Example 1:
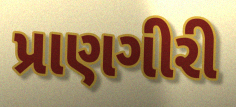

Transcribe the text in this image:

પ્રાણગીરી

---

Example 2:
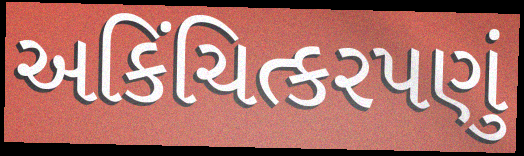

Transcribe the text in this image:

અકિંચિત્કરપણું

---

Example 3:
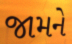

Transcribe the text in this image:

જામને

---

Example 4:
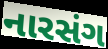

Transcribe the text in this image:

નારસંગ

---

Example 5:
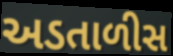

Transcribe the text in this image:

અડતાળીસ